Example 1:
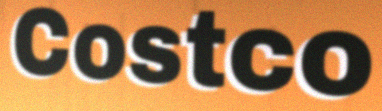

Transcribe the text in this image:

Costco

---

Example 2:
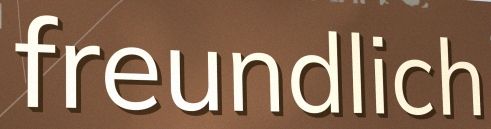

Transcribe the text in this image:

freundlich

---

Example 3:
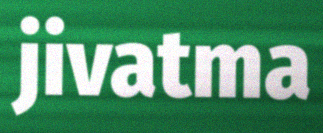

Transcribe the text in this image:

jivatma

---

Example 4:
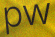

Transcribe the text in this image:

pw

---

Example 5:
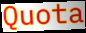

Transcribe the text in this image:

Quota